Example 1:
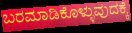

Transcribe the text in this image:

ಬರಮಾಡಿಕೊಳ್ಳುವುದಕ್ಕೆ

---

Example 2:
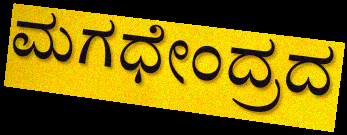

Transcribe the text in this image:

ಮಗಧೇಂದ್ರದ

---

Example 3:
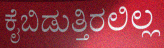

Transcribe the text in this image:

ಕೈಬಿಡುತ್ತಿರಲಿಲ್ಲ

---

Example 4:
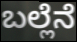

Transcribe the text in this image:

ಬಲ್ಲೆನೆ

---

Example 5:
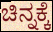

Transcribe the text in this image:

ಚಿನ್ನಕ್ಕೆ